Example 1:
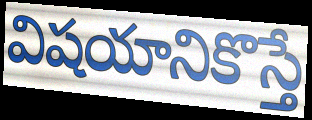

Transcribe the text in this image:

విషయానికొస్తే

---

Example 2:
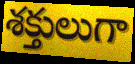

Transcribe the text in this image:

శక్తులుగా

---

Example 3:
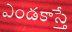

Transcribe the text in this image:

ఎండకాస్తే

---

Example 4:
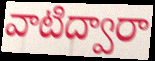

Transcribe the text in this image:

వాటిద్వారా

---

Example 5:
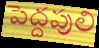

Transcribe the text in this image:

పెద్దపులి